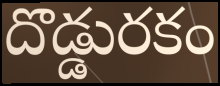
దొడ్డురకం